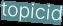
topicid